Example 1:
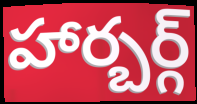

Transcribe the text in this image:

హార్బర్గ్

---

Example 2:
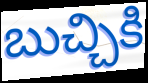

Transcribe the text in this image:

బుచ్చికి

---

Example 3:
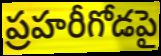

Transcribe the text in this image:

ప్రహరీగోడపై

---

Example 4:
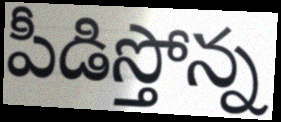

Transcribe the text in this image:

పీడిస్తోన్న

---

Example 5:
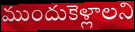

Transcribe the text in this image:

ముందుకెళ్లాలని